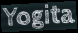
Yogita